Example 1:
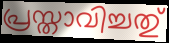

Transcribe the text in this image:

പ്രസ്താവിച്ചതു്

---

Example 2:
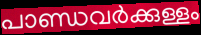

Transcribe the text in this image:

പാണ്ഡവർക്കുള്ളം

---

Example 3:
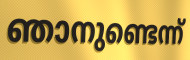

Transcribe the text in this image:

ഞാനുണ്ടെന്ന്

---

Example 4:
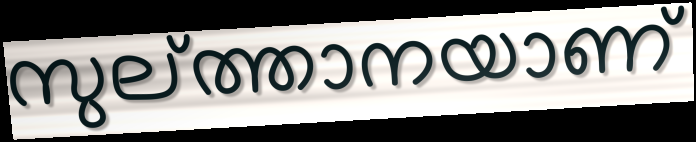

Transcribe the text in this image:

സുല്ത്താനയാണ്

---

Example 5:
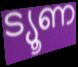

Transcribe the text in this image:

ട്യൂണ